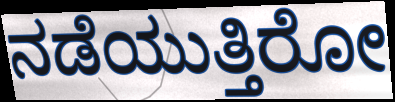
ನಡೆಯುತ್ತಿರೋ